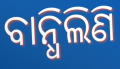
ବାନ୍ଧିଲିଣି